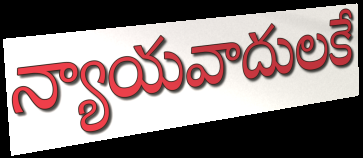
న్యాయవాదులకే